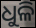
ଧୁଳି